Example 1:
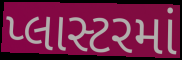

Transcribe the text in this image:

પ્લાસ્ટરમાં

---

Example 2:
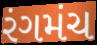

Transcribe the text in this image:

રંગમંચ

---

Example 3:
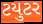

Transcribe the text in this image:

ટયુટર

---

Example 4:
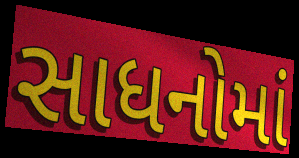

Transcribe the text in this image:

સાધનોમાં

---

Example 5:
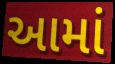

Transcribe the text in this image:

આમાં